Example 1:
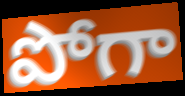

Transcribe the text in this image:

పోగా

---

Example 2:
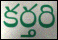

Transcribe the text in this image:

కర్తరి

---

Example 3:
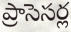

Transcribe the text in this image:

ప్రాసెసర్ల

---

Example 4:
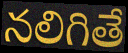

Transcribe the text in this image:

నలిగితే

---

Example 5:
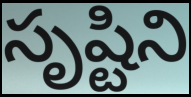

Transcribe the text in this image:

సృష్టిని